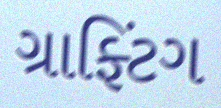
ગ્રાફ્ટિંગ